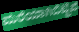
ಮರೆಯಾಗಿಬಿಟ್ಟಿವೆ